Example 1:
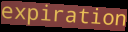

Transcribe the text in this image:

expiration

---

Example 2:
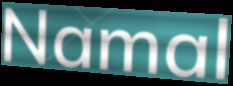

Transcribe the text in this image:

Namal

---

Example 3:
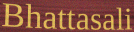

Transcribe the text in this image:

Bhattasali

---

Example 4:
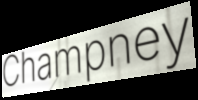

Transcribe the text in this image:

Champney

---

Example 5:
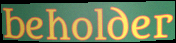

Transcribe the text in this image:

beholder